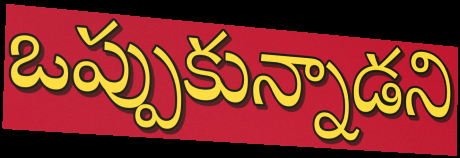
ఒప్పుకున్నాడని